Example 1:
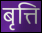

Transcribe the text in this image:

बृत्ति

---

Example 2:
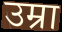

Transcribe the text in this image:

उम्रा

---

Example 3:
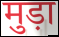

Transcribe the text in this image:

मुड़ा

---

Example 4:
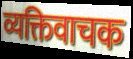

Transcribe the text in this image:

व्यक्तिवाचक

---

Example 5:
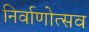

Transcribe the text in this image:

निर्वाणोत्सव